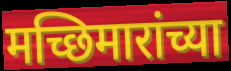
मच्छिमारांच्या